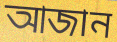
আজান